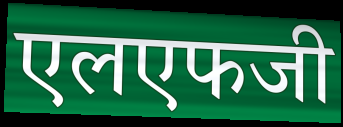
एलएफजी